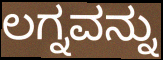
ಲಗ್ನವನ್ನು